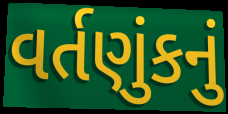
વર્તણુંકનું